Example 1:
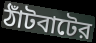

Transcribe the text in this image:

ঠাঁটবাটের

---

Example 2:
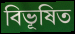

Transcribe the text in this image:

বিভূষিত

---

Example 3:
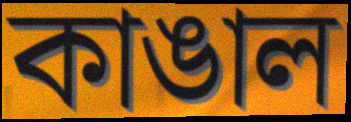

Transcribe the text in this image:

কাঙাল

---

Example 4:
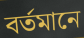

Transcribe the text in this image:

বর্তমানে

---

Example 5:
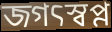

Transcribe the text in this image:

জগৎস্বপ্ন